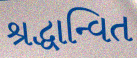
શ્રદ્ધાન્વિત